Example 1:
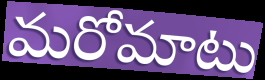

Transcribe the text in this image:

మరోమాటు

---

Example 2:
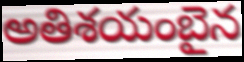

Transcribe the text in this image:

అతిశయంబైన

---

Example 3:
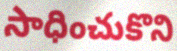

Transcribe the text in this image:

సాధించుకొని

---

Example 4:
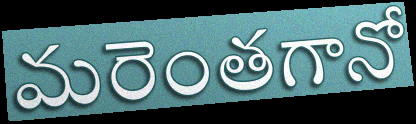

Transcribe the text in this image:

మరెంతగానో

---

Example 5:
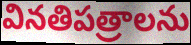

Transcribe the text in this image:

వినతిపత్రాలను